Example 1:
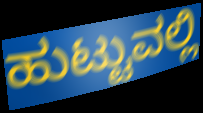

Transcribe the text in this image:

ಹುಟ್ಟುವಲ್ಲಿ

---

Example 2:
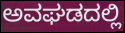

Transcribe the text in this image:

ಅವಘಡದಲ್ಲಿ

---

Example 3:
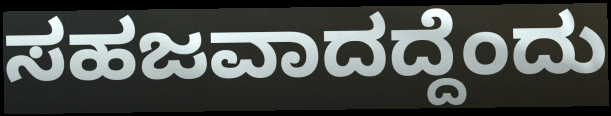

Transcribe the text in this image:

ಸಹಜವಾದದ್ದೆಂದು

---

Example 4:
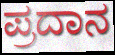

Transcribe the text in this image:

ಪ್ರದಾನ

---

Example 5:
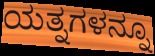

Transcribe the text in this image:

ಯತ್ನಗಳನ್ನೂ